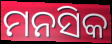
ମନସିକ